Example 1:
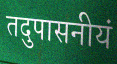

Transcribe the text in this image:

तदुपासनीयं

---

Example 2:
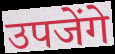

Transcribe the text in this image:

उपजेंगे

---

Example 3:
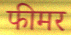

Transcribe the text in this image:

फीमर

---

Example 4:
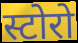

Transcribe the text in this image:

स्टोरो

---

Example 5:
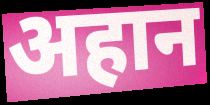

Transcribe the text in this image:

अहान